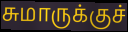
சுமாருக்குச்